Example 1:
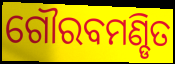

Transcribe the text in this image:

ଗୌରବମଣ୍ଡିତ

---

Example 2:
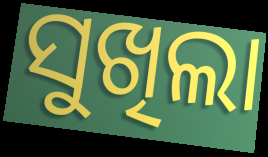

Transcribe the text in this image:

ସୁଖିଲା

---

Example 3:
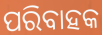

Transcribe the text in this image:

ପରିବାହକ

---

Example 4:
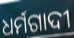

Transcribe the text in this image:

ଧର୍ମଗାଦୀ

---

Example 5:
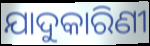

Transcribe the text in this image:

ଯାଦୁକାରିଣୀ